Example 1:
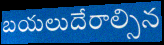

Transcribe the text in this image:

బయలుదేరాల్సిన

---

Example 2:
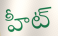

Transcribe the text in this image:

హీట్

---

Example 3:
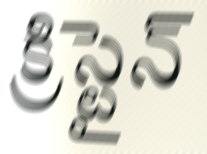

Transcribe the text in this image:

క్రిస్టైన్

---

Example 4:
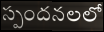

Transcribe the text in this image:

స్పందనలలో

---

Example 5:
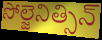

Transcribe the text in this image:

సోల్జెనిత్సిన్